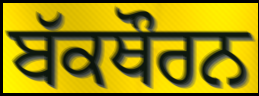
ਬੱਕਥੌਰਨ